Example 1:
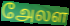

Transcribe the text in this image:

அேலள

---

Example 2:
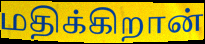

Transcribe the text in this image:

மதிக்கிறான்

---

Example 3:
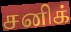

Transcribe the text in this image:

சனிக்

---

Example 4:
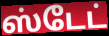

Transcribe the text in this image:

ஸ்டேட்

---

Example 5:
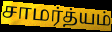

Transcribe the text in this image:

சாமர்த்யம்